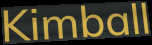
Kimball